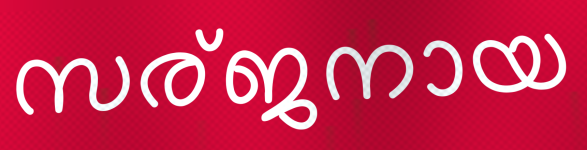
സര്ജനായ